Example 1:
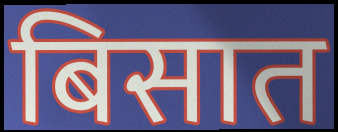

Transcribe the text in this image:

बिसात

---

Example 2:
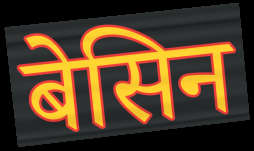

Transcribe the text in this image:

बेसिन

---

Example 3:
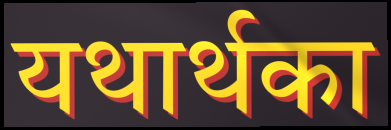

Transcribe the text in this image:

यथार्थका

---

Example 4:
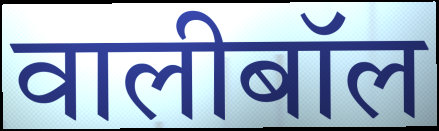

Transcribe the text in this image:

वालीबॉल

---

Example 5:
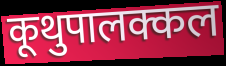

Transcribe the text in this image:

कूथुपालक्कल